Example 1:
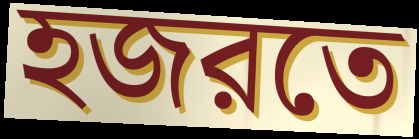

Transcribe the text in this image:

হজরতে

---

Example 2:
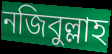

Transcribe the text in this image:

নজিবুল্লাহ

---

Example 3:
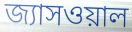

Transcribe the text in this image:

জ্যাসওয়াল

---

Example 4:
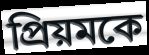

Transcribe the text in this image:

প্রিয়মকে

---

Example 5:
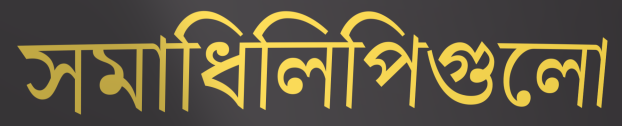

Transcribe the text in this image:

সমাধিলিপিগুলো